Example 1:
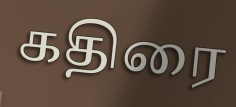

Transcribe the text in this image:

கதிரை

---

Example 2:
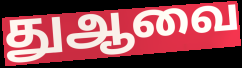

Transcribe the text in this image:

துஆவை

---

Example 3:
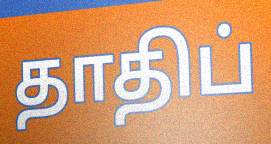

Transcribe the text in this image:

தாதிப்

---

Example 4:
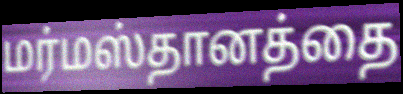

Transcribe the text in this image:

மர்மஸ்தானத்தை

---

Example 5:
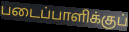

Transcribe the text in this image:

படைப்பாளிக்குப்